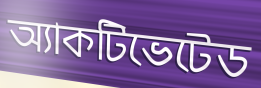
অ্যাকটিভেটেড